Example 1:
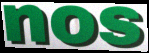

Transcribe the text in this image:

nos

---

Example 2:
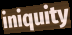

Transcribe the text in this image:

iniquity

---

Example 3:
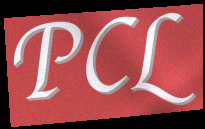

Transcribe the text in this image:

PCL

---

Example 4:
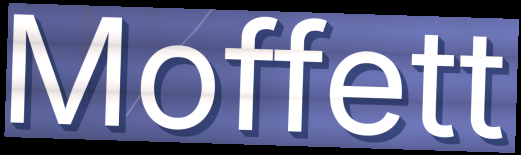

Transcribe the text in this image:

Moffett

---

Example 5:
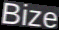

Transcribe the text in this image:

Bize